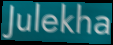
Julekha